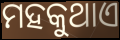
ମହକୁଥାଏ